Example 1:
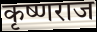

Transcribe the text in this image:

कृष्णराज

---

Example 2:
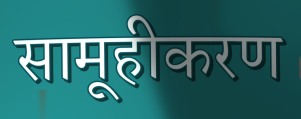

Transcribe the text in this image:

सामूहीकरण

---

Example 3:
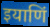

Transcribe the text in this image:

इयाणिं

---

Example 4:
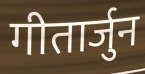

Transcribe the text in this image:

गीतार्जुन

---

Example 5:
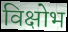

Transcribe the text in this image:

विक्षोभ